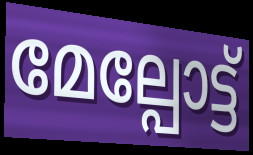
മേല്പോട്ട്